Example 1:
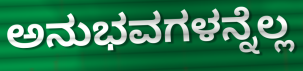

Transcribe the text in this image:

ಅನುಭವಗಳನ್ನೆಲ್ಲ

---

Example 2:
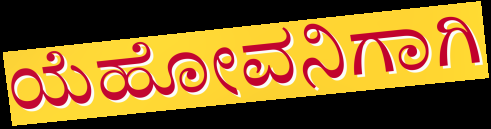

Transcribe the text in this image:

ಯೆಹೋವನಿಗಾಗಿ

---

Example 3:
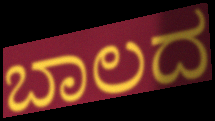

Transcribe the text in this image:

ಬಾಲದ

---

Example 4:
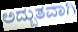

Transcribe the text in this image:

ಅದ್ಬುತವಾಗಿ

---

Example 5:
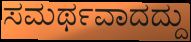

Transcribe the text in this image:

ಸಮರ್ಥವಾದದ್ದು